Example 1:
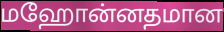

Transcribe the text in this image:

மஹோன்னதமான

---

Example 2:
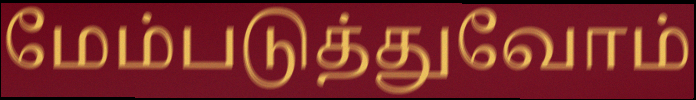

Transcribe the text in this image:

மேம்படுத்துவோம்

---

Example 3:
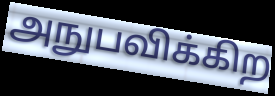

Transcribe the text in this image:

அநுபவிக்கிற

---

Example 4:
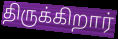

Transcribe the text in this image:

திருக்கிறார்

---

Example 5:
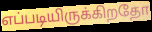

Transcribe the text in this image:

எப்படியிருக்கிறதோ